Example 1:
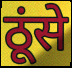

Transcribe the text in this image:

ठूंसे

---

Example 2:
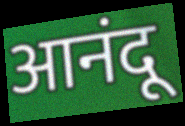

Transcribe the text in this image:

आनंदू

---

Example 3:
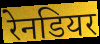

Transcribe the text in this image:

रेनडियर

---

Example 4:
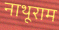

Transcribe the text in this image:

नाथूराम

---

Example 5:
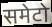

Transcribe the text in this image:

समेटो